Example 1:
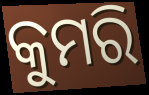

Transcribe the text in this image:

କୁମରି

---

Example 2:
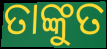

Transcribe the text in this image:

ତାଙ୍କୁତ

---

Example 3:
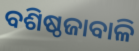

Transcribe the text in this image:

ବଶିଷ୍ଠଜାବାଳି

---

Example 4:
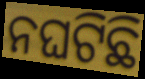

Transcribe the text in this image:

ନଘଟିଛି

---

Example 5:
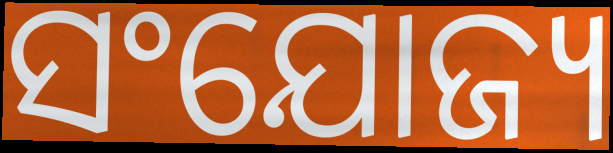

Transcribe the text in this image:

ସଂଯୋଜ୍ୟ